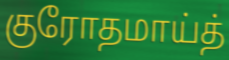
குரோதமாய்த்